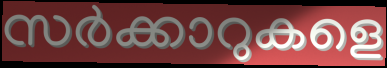
സർക്കാറുകളെ